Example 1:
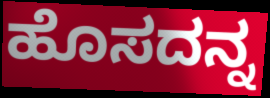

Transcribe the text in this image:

ಹೊಸದನ್ನ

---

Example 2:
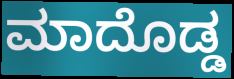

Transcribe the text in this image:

ಮಾದೊಡ್ಡ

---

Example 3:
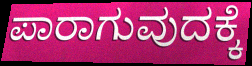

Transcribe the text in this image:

ಪಾರಾಗುವುದಕ್ಕೆ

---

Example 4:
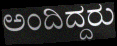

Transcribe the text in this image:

ಅಂದಿದ್ದರು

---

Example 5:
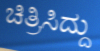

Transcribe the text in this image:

ಚಿತ್ರಿಸಿದ್ದು